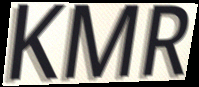
KMR